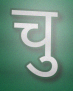
चु